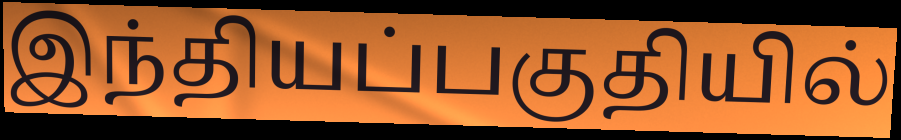
இந்தியப்பகுதியில்